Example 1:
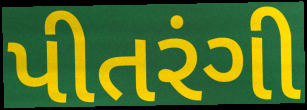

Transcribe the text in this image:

પીતરંગી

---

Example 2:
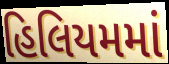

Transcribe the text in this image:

હિલિયમમાં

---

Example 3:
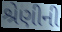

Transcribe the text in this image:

શ્રેણીની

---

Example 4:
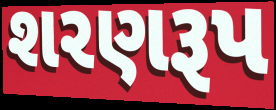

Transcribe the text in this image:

શરણરૂપ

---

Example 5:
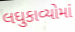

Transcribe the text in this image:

લઘુકાવ્યોમાં